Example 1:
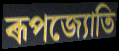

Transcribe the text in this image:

ৰূপজ্যোতি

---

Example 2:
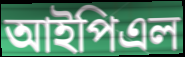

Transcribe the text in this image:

আইপিএল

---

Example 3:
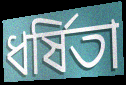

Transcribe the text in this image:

ধৰ্ষিতা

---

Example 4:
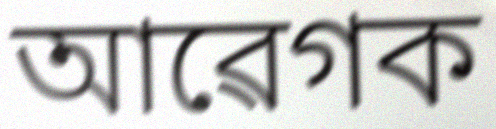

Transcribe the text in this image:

আৱেগক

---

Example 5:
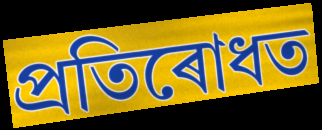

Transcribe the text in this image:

প্ৰতিৰোধত